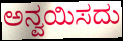
ಅನ್ವಯಿಸದು